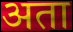
अता